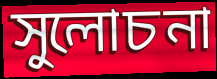
সুলোচনা